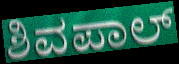
ಶಿವಪಾಲ್